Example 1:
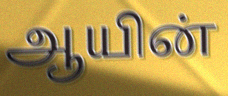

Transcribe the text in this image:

ஆயின்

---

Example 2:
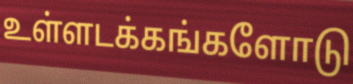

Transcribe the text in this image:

உள்ளடக்கங்களோடு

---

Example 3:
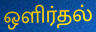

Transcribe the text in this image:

ஒளிர்தல்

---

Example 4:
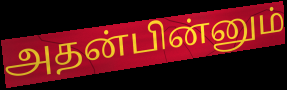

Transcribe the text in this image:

அதன்பின்னும்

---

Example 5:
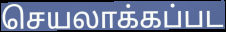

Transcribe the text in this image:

செயலாக்கப்பட